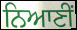
ਨਿਆਣੀਂ